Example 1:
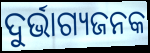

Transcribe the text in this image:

ଦୁର୍ଭାଗ୍ୟଜନକ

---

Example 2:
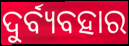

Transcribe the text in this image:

ଦୁର୍ବ୍ୟବହାର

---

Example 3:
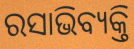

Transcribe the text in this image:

ରସାଭିବ୍ୟକ୍ତି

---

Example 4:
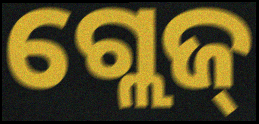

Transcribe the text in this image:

ଗ୍ଲେଜ୍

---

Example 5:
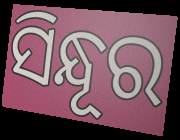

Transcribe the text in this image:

ସିନ୍ଧୂର